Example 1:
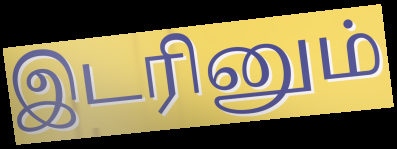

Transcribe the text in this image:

இடரினும்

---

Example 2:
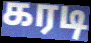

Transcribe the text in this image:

கரடி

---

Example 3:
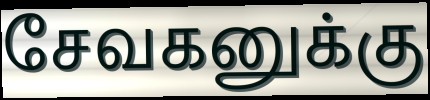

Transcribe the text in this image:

சேவகனுக்கு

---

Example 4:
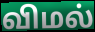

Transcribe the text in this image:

விமல்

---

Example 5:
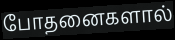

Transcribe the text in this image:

போதனைகளால்